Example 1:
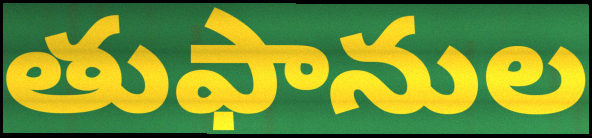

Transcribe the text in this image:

తుఫానుల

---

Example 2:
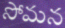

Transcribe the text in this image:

సోమన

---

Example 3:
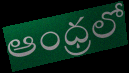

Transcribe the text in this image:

ఆంధ్రలో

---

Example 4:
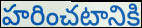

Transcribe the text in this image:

హరించటానికి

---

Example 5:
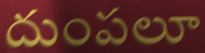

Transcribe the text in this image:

దుంపలూ